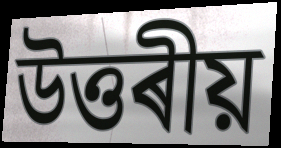
উত্তৰীয়